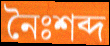
নৈঃশব্দ